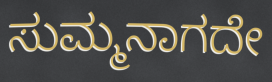
ಸುಮ್ಮನಾಗದೇ